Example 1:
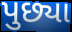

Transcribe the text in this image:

પુછ્યા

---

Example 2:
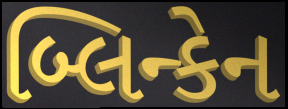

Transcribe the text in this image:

બ્લિન્કેન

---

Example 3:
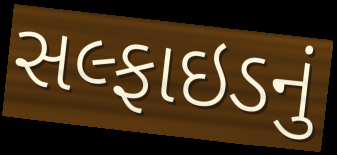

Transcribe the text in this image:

સલ્ફાઇડનું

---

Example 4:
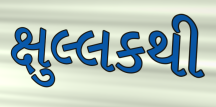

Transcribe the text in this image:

ક્ષુલ્લકથી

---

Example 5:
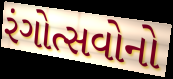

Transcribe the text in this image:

રંગોત્સવોનો